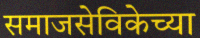
समाजसेविकेच्या